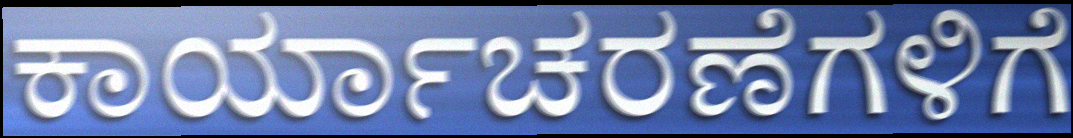
ಕಾರ್ಯಾಚರಣೆಗಳಿಗೆ